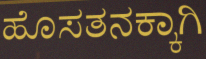
ಹೊಸತನಕ್ಕಾಗಿ